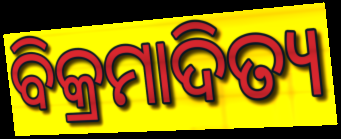
ବିକ୍ରମାଦିତ୍ୟ